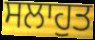
ਸਲਾਹੁਤ